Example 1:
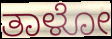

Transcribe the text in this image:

ತಾಳೋ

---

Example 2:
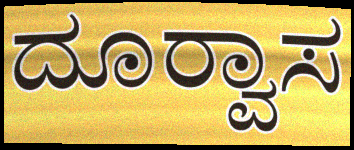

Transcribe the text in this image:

ದೂರ‍್ವಾಸ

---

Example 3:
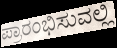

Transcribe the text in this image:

ಪ್ರಾರಂಭಿಸುವಲ್ಲಿ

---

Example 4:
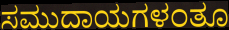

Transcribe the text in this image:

ಸಮುದಾಯಗಳಂತೂ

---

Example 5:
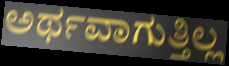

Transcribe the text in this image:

ಅರ್ಥವಾಗುತ್ತಿಲ್ಲ